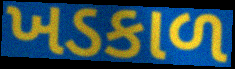
ખડકાળ